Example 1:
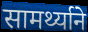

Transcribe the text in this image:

सामर्थ्याने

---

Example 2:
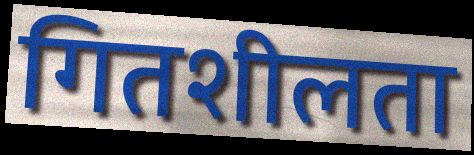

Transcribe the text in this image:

गितशीलता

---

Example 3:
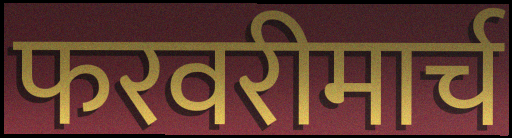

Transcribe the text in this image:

फरवरीमार्च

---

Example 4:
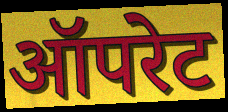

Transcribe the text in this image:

ऑपरेट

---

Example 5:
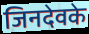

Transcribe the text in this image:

जिनदेवके